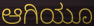
ಆಗಿಯೂ